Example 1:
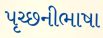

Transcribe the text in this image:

પૃચ્છનીભાષા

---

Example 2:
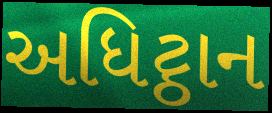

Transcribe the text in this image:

અધિટ્ઠાન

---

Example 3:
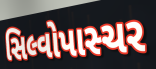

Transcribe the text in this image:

સિલ્વોપાસ્ચર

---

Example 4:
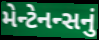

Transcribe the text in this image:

મેન્ટેનન્સનું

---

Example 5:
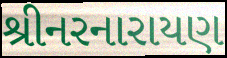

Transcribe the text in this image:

શ્રીનરનારાયણ